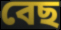
বেছ